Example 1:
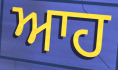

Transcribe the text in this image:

ਆਹ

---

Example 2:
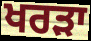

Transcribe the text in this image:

ਖਰੜਾ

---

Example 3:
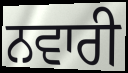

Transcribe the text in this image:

ਨਵਾਰੀ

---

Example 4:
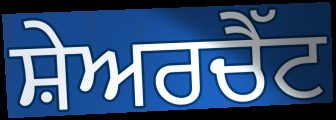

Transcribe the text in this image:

ਸ਼ੇਅਰਚੈੱਟ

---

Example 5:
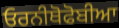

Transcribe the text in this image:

ਓਰਨੀਥੋਫੋਬੀਆ